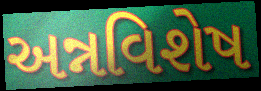
અન્નવિશેષ